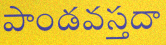
పాండవస్తదా